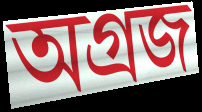
অগ্ৰজ